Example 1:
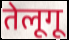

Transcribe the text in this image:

तेलूगू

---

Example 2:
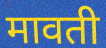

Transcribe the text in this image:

मावती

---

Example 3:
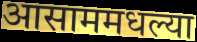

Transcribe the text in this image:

आसाममधल्या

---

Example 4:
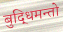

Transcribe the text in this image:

बुद्धिमन्तो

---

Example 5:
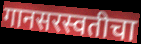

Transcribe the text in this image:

गानसरस्वतीचा